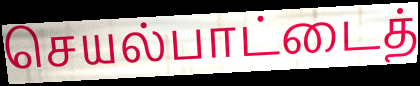
செயல்பாட்டைத்